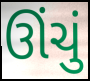
ઊંચું